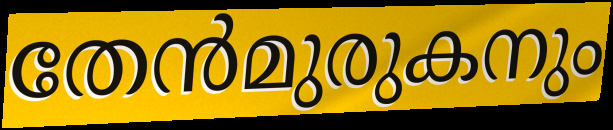
തേൻമുരുകനും